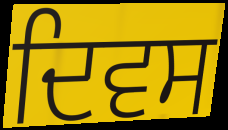
ਦਿਵਸ